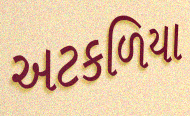
અટકળિયા